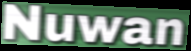
Nuwan